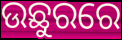
ଉଛୁରରେ